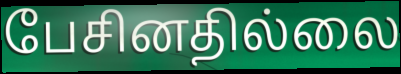
பேசினதில்லை